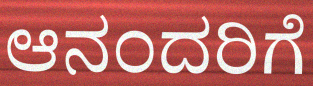
ಆನಂದರಿಗೆ